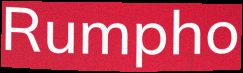
Rumpho